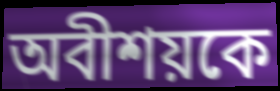
অবীশয়কে